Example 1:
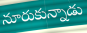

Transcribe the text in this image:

నూరుకున్నాడు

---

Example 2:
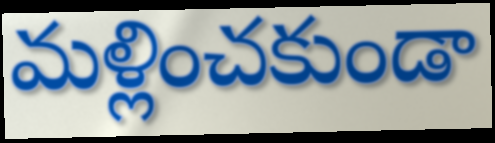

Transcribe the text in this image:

మళ్లించకుండా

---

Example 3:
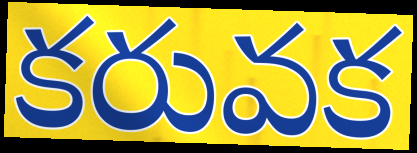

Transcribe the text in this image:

కరువక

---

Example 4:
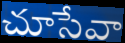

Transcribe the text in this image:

చూసేవా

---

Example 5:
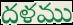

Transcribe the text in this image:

దళము